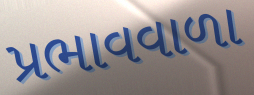
પ્રભાવવાળા